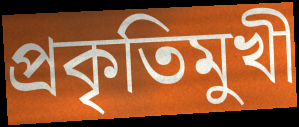
প্রকৃতিমুখী